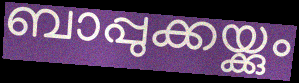
ബാപ്പുക്കയ്ക്കും